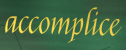
accomplice